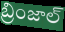
బ్రింజాల్